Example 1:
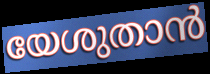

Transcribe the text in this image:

യേശുതാൻ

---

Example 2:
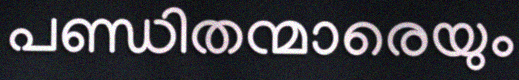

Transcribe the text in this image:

പണ്ഡിതന്മാരെയും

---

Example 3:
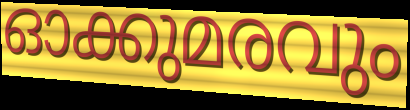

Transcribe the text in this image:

ഓക്കുമരവും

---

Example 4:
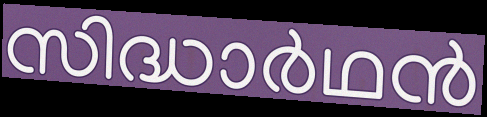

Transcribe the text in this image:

സിദ്ധാർഥൻ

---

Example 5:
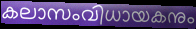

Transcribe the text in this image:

കലാസംവിധായകനും